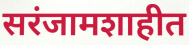
सरंजामशाहीत